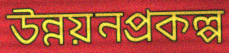
উন্নয়নপ্রকল্প